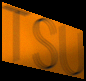
TSU